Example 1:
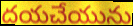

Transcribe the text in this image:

దయచేయును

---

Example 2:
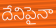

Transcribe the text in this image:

దేనిపైనా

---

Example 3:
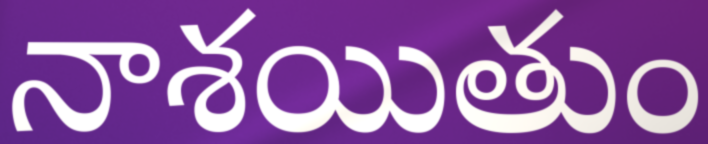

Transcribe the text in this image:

నాశయితుం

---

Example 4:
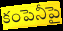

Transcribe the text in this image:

కంపెనీపై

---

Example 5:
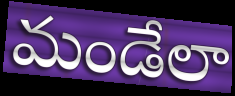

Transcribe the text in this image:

మండేలా